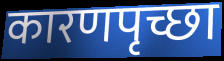
कारणपृच्छा